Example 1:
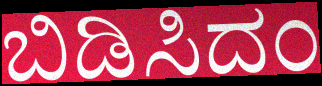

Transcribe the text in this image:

ಬಿಡಿಸಿದಂ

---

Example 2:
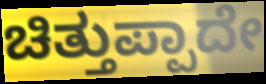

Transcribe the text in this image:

ಚಿತ್ತುಪ್ಪಾದೇ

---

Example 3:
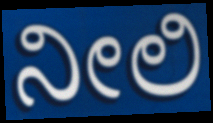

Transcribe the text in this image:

ನೀಲಿ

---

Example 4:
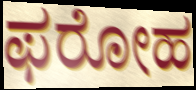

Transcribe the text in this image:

ಫರೋಹ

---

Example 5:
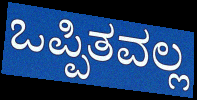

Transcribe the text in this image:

ಒಪ್ಪಿತವಲ್ಲ